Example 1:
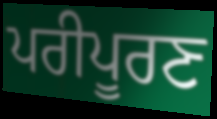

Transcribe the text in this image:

ਪਰੀਪੂਰਣ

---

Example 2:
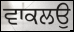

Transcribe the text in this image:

ਵਾਕਲਉ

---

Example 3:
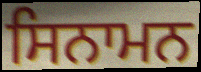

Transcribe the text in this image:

ਸਿਨਾਮਨ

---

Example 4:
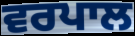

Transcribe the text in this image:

ਵਰਪਾਲ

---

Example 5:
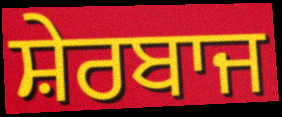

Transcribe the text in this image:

ਸ਼ੇਰਬਾਜ